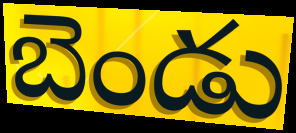
బెండు